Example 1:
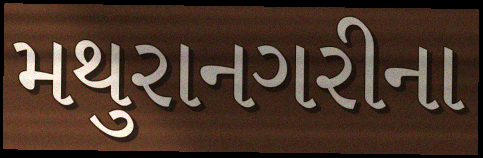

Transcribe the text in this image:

મથુરાનગરીના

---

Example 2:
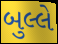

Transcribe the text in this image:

બુલ્લે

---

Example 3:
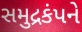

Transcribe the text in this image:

સમુદ્રકંપને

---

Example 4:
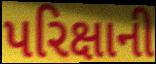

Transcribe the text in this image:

પરિક્ષાની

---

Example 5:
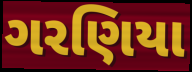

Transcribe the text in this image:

ગરણિયા